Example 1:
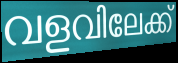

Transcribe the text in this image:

വളവിലേക്ക്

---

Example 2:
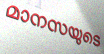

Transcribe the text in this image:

മാനസയുടെ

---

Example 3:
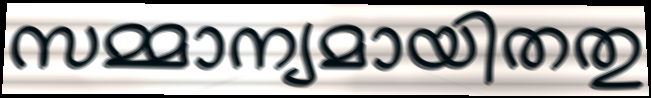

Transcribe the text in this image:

സമ്മാന്യമായിതതു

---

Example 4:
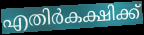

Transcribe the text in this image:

എതിർകക്ഷിക്ക്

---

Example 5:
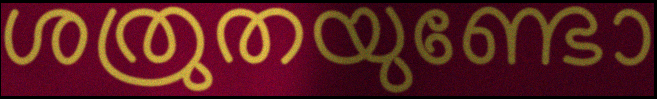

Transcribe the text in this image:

ശത്രുതയുണ്ടോ